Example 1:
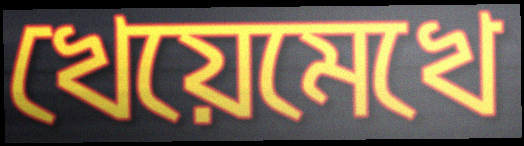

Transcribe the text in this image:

খেয়েমেখে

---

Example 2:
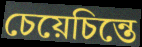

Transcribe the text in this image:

চেয়েচিন্তে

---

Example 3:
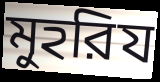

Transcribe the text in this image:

মুহরিয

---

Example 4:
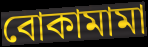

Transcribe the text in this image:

বোকামামা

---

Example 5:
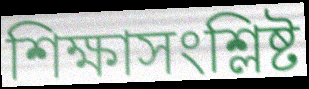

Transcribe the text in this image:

শিক্ষাসংশ্লিষ্ট